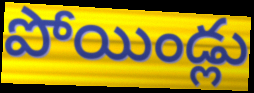
పోయిండ్లు